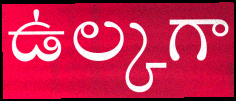
ఉల్కగా